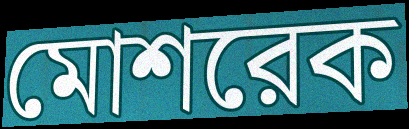
মোশরেক